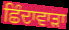
ਛਿੰਦਾਵਾੜਾ